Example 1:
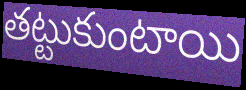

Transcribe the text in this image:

తట్టుకుంటాయి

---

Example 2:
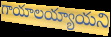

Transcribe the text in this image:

గాయాలయ్యాయని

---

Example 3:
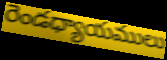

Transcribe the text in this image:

రెండధ్యాయములు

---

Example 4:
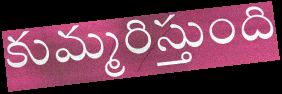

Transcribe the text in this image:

కుమ్మరిస్తుంది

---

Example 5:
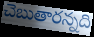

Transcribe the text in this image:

చెబుతారన్నది